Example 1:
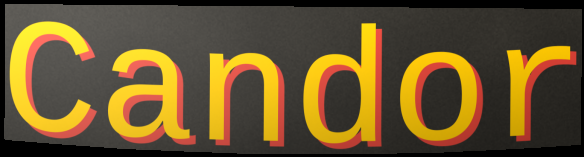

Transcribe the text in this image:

Candor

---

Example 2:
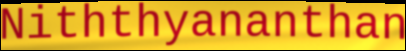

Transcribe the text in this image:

Niththyananthan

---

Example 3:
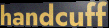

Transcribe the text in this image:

handcuff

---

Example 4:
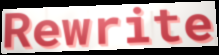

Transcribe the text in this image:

Rewrite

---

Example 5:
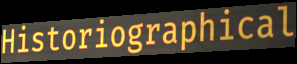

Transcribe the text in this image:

Historiographical